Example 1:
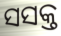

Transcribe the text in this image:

ସସକ୍ତ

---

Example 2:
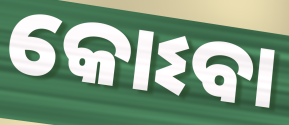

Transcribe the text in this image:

କୋଽବା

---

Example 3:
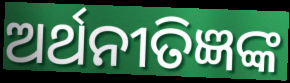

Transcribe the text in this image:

ଅର୍ଥନୀତିଜ୍ଞଙ୍କ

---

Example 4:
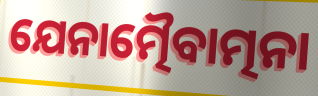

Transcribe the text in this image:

ଯେନାତ୍ମୈବାତ୍ମନା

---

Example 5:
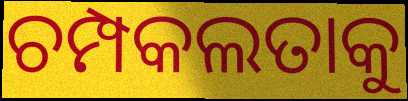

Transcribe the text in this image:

ଚମ୍ପକଲତାକୁ